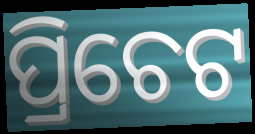
ପ୍ରିଚେଟ